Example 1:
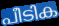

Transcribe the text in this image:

പീടിക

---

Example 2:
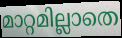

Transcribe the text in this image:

മാറ്റമില്ലാതെ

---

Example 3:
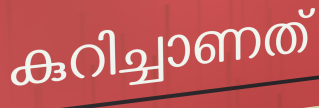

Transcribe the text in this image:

കുറിച്ചാണത്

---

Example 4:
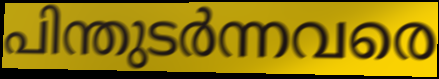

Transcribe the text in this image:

പിന്തുടർന്നവരെ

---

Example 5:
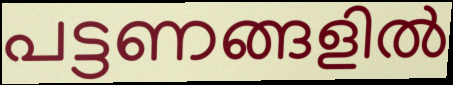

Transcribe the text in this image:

പട്ടണങ്ങളിൽ